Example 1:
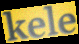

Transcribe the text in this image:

kele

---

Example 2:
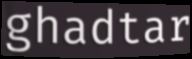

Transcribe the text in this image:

ghadtar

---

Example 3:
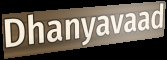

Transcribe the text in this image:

Dhanyavaad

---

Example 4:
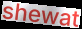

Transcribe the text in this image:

shewat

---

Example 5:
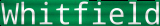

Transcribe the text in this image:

Whitfield